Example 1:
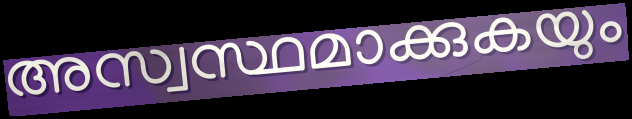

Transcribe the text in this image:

അസ്വസ്ഥമാക്കുകയും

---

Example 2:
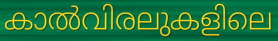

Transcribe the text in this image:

കാൽവിരലുകളിലെ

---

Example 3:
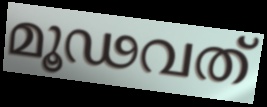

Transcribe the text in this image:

മൂഢവത്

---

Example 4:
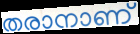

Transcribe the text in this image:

തരാനാണ്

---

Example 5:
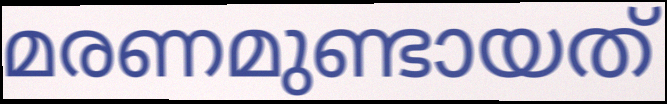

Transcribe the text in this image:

മരണമുണ്ടായത്